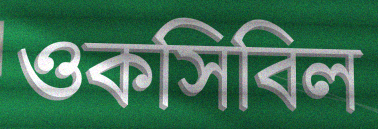
ওকসিবিল